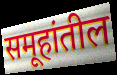
समूहांतील